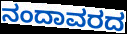
ನಂದಾವರದ